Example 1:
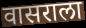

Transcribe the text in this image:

वासराला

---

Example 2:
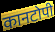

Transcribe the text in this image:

कानटोपी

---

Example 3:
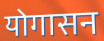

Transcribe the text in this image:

योगासन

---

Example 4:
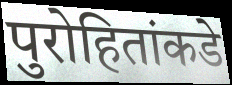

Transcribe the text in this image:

पुरोहितांकडे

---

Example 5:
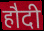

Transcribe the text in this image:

हौदी